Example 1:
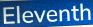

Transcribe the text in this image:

Eleventh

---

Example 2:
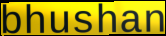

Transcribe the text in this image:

bhushan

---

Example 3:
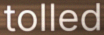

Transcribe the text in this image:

tolled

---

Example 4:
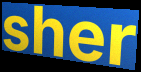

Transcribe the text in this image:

sher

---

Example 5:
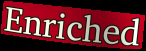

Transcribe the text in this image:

Enriched